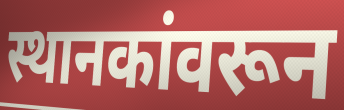
स्थानकांवरून